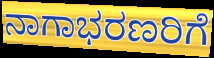
ನಾಗಾಭರಣರಿಗೆ